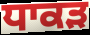
ਧਾਕੜ